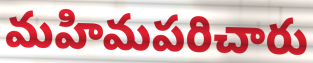
మహిమపరిచారు